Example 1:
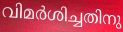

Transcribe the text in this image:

വിമർശിച്ചതിനു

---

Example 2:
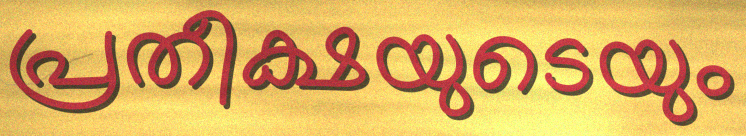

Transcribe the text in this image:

പ്രതീക്ഷയുടെയും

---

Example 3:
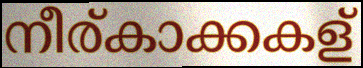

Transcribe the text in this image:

നീര്കാക്കകള്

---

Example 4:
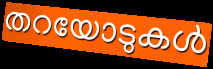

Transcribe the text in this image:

തറയോടുകൾ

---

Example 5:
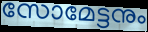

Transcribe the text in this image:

സോമേട്ടനും